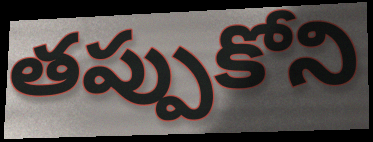
తప్పుకోని